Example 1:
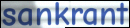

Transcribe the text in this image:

sankrant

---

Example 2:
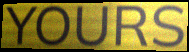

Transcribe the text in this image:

YOURS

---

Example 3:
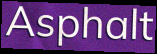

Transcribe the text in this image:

Asphalt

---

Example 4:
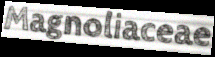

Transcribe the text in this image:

Magnoliaceae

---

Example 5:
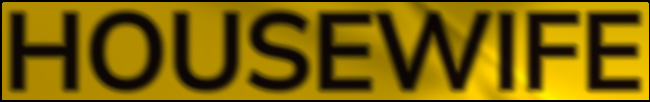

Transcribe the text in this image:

HOUSEWIFE